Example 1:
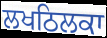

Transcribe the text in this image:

ਲਖਠਿਲਕਾ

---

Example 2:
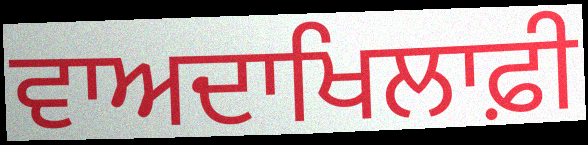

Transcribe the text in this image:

ਵਾਅਦਾਖਿਲਾਫ਼ੀ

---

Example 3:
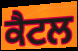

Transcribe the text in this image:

ਕੈਟਲ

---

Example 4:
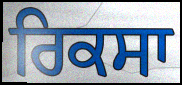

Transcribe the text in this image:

ਰਿਕਸਾ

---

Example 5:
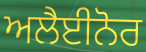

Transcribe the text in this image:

ਅਲੈਈਨੋਰ